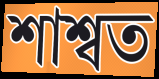
শাশ্বত